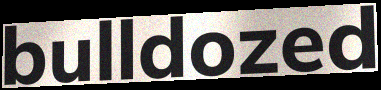
bulldozed